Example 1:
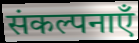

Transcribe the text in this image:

संकल्पनाएँ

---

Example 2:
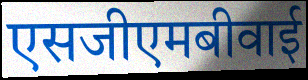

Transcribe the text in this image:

एसजीएमबीवाई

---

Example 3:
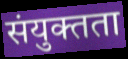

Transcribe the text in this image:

संयुक्तता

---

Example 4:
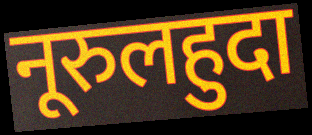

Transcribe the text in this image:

नूरुलहुदा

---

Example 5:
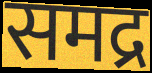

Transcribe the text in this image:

समद्र